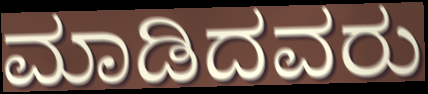
ಮಾಡಿದವರು